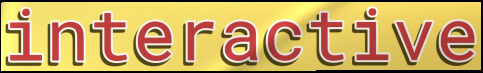
interactive